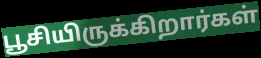
பூசியிருக்கிறார்கள்